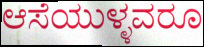
ಆಸೆಯುಳ್ಳವರೂ